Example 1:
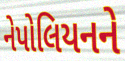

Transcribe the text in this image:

નેપોલિયનને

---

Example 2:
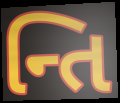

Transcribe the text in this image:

ન્તિ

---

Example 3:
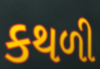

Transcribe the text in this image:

કથળી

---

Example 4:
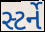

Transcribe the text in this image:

સ્ટર્ને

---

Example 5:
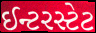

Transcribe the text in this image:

ઈન્ટરસ્ટેટ